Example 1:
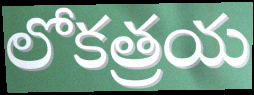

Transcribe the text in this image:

లోకత్రయ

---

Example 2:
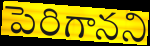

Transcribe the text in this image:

పెరిగానని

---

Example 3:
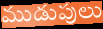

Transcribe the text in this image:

ముడుపులు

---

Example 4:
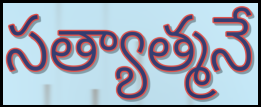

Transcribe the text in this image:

సత్యాత్మనే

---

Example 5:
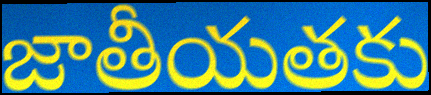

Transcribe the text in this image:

జాతీయతకు